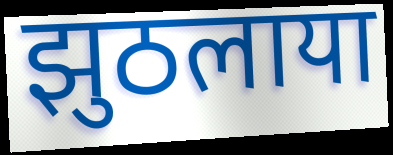
झुठलाया